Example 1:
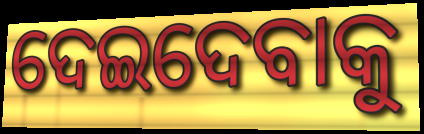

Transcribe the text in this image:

ଦେଇଦେବାକୁ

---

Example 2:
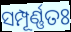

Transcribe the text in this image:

ସମ୍ପୂର୍ଣ୍ଣତଃ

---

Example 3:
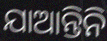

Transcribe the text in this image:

ଯାଆନ୍ତିନି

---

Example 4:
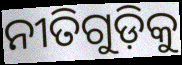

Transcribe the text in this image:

ନୀତିଗୁଡ଼ିକୁ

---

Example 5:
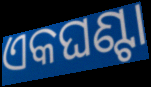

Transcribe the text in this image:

ଏକଘଣ୍ଟା